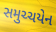
સમુચ્ચયેન